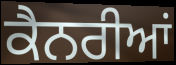
ਕੈਨਰੀਆਂ